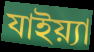
যাইয়্যা